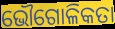
ଭୌଗୋଳିକତା